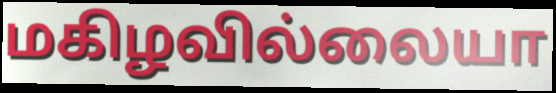
மகிழவில்லையா